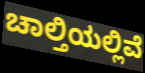
ಚಾಲ್ತಿಯಲ್ಲಿವೆ